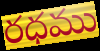
రధము